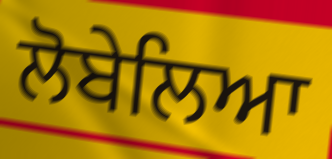
ਲੋਬੇਲਿਆ